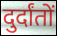
दुर्दांतों